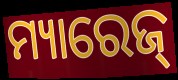
ମ୍ୟାରେଜ୍